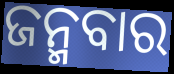
ଜନ୍ମବାର